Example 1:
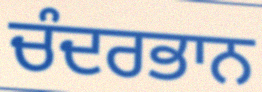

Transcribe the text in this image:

ਚੰਦਰਭਾਨ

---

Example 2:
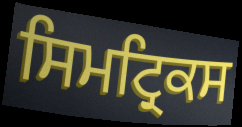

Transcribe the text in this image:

ਸਿਮਟ੍ਰਿਕਸ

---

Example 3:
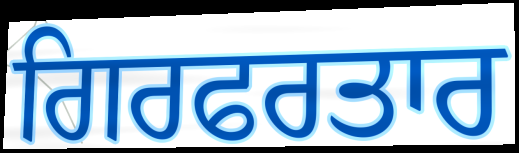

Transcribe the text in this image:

ਗਿਰਫਰਤਾਰ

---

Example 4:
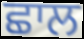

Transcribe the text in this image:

ਛਾਲ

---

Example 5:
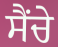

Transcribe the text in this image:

ਸੈਂਚੇ